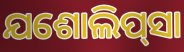
ଯଶୋଲିପ୍‌ସା